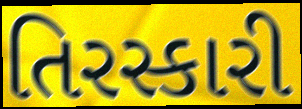
તિરસ્કારી